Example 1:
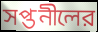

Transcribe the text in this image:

সপ্তনীলের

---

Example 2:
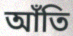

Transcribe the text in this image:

আঁতি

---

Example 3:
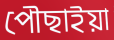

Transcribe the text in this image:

পৌছাইয়া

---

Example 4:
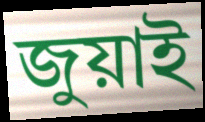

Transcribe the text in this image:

জুয়াই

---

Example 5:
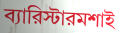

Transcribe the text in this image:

ব্যারিস্টারমশাই